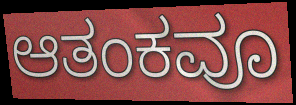
ಆತಂಕವೂ